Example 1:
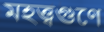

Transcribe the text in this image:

মহত্ত্বগুণে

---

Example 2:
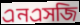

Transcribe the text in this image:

এনএসজি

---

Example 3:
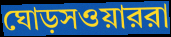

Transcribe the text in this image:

ঘোড়সওয়াররা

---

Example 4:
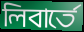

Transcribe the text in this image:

লিবার্তে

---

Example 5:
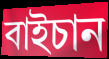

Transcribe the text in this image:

বাইচান